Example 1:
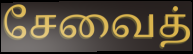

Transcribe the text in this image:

சேவைத்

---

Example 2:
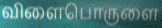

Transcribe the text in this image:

விளைபொருளை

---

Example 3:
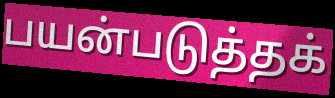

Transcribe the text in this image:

பயன்படுத்தக்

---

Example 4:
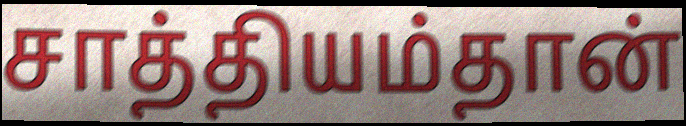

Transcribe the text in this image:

சாத்தியம்தான்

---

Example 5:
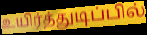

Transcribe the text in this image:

உயிர்த்துடிப்பில்